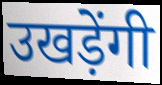
उखड़ेंगी